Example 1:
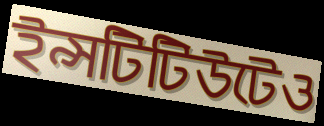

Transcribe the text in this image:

ইন্সটিটিউটেও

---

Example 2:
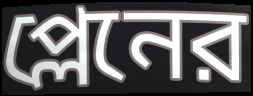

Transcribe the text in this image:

প্লেনের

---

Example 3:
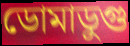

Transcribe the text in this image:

ডোমাডুগু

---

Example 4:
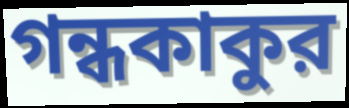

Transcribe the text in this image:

গন্ধকাকুর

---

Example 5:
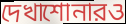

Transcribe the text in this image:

দেখাশোনারও